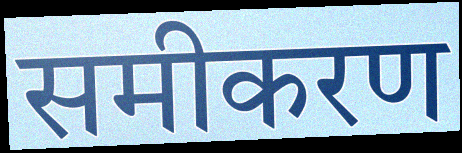
समीकरण